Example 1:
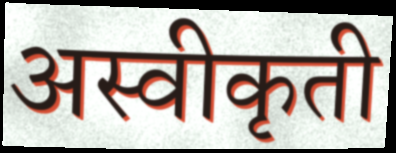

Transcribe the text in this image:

अस्वीकृती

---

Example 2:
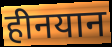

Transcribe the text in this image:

हीनयान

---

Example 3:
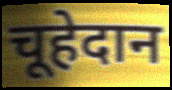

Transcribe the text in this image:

चूहेदान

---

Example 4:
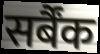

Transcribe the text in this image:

सर्बैंक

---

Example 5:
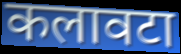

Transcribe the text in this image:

कलावटा